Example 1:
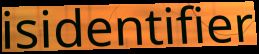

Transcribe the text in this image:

isidentifier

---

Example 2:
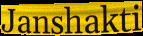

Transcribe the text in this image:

Janshakti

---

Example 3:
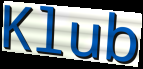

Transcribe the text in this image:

Klub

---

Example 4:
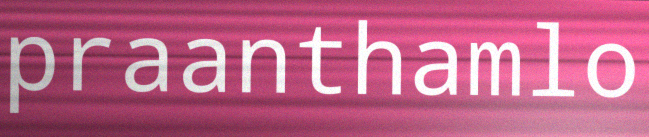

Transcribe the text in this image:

praanthamlo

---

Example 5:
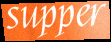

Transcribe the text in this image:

supper